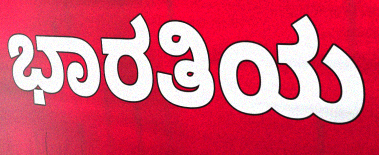
ಭಾರತಿಯ